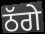
ਠੱਗੇ